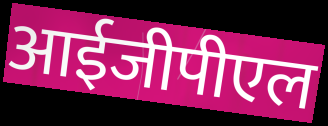
आईजीपीएल